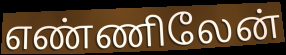
எண்ணிலேன்